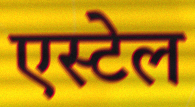
एस्टेल